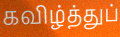
கவிழ்த்துப்